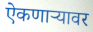
ऐकणाऱ्यावर